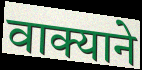
वाक्याने